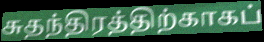
சுதந்திரத்திற்காகப்